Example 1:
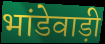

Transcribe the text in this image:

भांडेवाड़ी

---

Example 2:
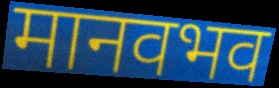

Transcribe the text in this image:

मानवभव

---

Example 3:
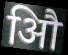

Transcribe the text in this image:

औि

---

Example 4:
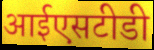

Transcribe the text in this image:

आईएसटीडी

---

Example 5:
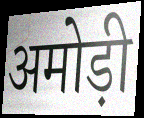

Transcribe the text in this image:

अमोड़ी